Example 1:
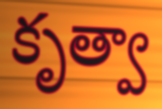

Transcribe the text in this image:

కృత్వా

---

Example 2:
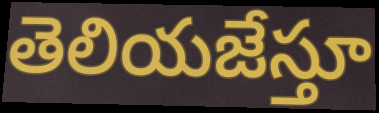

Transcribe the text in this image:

తెలియజేస్తూ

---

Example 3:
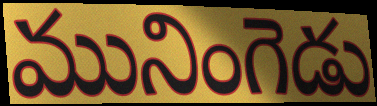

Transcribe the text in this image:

మునింగెడు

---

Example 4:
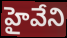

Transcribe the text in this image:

హైవేని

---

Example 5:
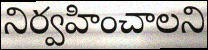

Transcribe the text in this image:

నిర్వహించాలని